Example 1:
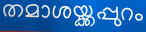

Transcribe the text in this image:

തമാശയ്ക്കപ്പുറം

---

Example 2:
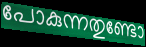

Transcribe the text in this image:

പോകുന്നതുണ്ടോ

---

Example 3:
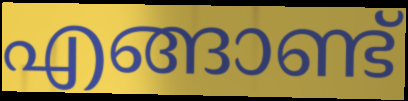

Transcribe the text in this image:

എങ്ങാണ്ട്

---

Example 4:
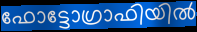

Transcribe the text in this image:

ഫോട്ടോഗ്രാഫിയിൽ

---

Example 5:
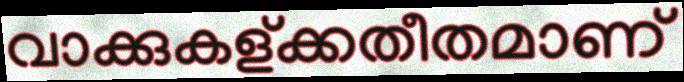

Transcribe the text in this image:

വാക്കുകള്ക്കതീതമാണ്